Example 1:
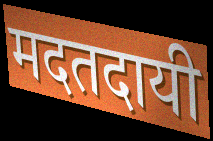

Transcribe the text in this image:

मदतदायी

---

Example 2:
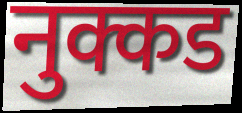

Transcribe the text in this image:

नुक्कड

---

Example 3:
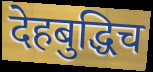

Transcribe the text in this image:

देहबुद्धिच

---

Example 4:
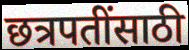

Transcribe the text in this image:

छत्रपतींसाठी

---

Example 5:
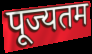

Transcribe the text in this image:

पूज्यतम